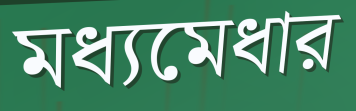
মধ্যমেধার